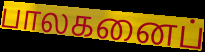
பாலகனைப்